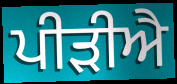
ਪੀੜੀਐ